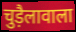
चुड़ैलावाला